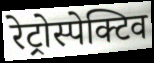
रेट्रोस्पेक्टिव